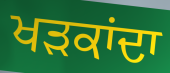
ਖੜਕਾਂਦਾ